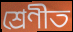
শ্ৰেণীত